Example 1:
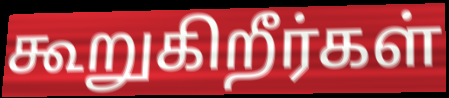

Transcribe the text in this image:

கூறுகிறீர்கள்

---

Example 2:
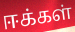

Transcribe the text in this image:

ஈக்கள்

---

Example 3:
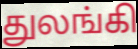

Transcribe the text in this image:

துலங்கி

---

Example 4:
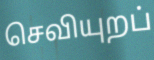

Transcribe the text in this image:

செவியுறப்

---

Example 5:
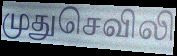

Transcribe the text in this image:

முதுசெவிலி